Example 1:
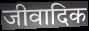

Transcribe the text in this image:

जीवादिक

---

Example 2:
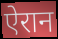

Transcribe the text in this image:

ऐरान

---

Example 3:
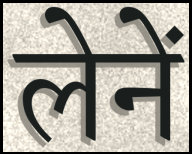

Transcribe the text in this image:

लेनें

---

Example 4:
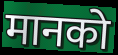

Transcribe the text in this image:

मानको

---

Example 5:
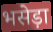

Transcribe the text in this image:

भसेड़ा